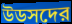
উডসদের